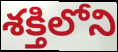
శక్తిలోని